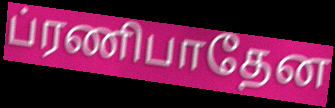
ப்ரணிபாதேன